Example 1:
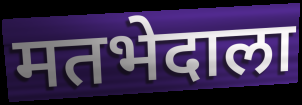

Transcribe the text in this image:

मतभेदाला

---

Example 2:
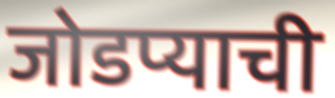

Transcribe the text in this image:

जोडप्याची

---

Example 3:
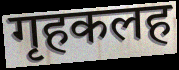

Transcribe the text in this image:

गृहकलह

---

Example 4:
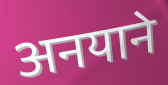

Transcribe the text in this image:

अनयाने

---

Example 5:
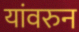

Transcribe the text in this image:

यांवरुन